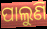
ପାଲୁଣି